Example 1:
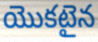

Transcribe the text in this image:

యొకటైన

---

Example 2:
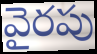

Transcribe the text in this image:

వైరపు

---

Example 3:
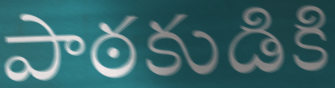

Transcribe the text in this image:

పాఠకుడికి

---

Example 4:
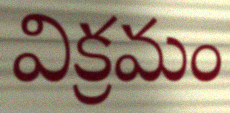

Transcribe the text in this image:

విక్రమం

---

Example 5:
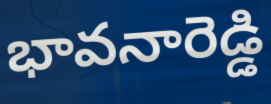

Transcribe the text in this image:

భావనారెడ్డి